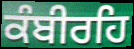
ਕੰਬੀਰਹਿ